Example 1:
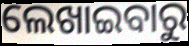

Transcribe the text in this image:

ଲେଖାଇବାରୁ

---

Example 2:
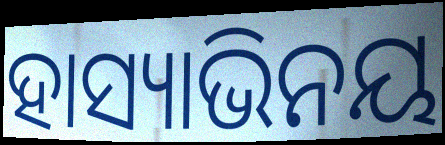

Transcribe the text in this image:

ହାସ୍ୟାଭିନୟ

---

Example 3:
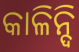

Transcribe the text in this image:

କାଳିନ୍ଦି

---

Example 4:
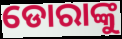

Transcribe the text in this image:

ଡୋରାଙ୍କୁ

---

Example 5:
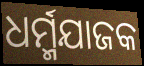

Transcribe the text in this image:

ଧର୍ମ୍ମଯାଜକ